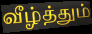
வீழ்த்தும்